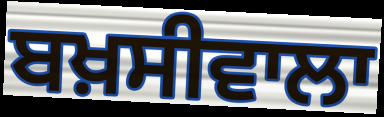
ਬਖ਼ਸੀਵਾਲਾ